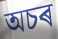
অচৰ